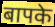
बापके